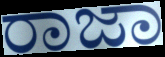
ರಾಜಾ